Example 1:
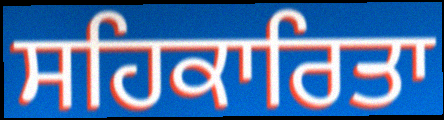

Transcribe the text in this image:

ਸਹਿਕਾਰਿਤਾ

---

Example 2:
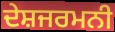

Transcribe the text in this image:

ਦੇਸ਼ਜਰਮਨੀ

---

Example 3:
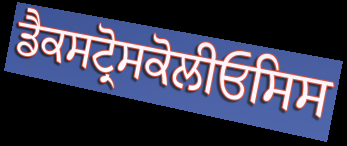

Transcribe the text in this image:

ਡੈਕਸਟ੍ਰੋਸਕੋਲੀਓਸਿਸ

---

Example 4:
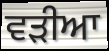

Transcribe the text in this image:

ਵੜੀਆ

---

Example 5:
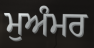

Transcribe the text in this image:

ਮੁਅੰਮਰ